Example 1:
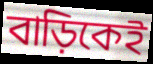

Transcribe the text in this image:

বাড়িকেই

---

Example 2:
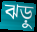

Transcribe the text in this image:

ঝড়ু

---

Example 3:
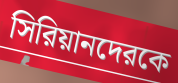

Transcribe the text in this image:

সিরিয়ানদেরকে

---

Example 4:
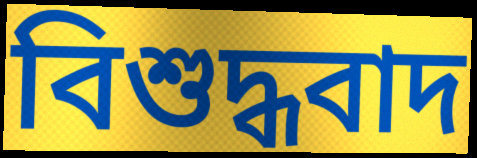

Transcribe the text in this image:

বিশুদ্ধবাদ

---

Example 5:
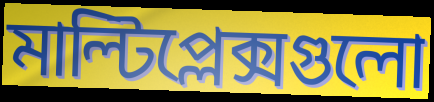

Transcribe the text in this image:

মাল্টিপ্লেক্সগুলো